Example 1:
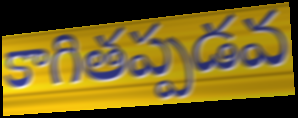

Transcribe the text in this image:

కాగితప్పడవ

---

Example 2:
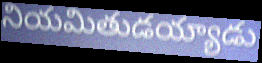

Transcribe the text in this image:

నియమితుడయ్యాడు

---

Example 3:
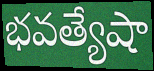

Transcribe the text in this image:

భవత్యేషా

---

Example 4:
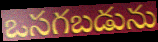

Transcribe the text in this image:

ఒసగబడును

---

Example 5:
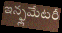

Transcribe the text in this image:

ఇన్ఫ్లమేటరీ